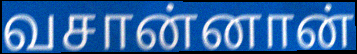
வசான்னான்